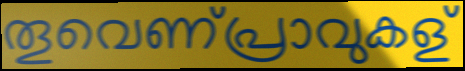
തൂവെണ്പ്രാവുകള്